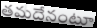
తమదేనంటూ